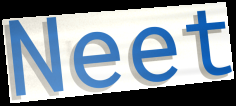
Neet